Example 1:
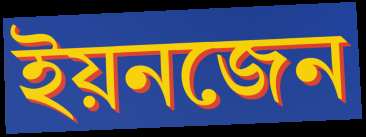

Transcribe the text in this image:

ইয়নজেন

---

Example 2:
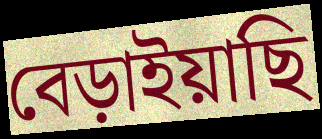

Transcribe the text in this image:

বেড়াইয়াছি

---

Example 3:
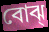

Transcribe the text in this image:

বোঝ্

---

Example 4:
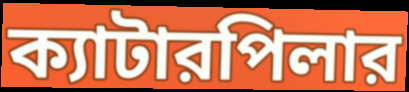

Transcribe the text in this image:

ক্যাটারপিলার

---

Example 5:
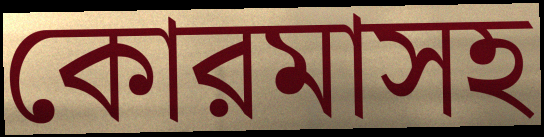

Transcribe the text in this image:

কোরমাসহ